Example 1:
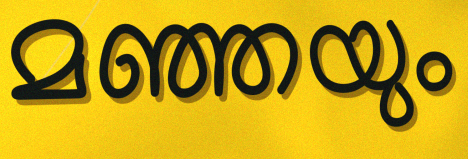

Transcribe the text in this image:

മഞ്ഞയും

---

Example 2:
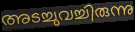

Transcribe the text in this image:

അടച്ചുവച്ചിരുന്നു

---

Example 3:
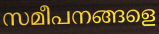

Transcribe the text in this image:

സമീപനങ്ങളെ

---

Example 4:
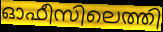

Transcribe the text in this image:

ഓഫീസിലെത്തി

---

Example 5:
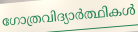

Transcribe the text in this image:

ഗോത്രവിദ്യാർത്ഥികൾ